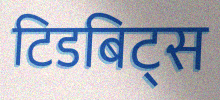
टिडबिट्स